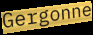
Gergonne